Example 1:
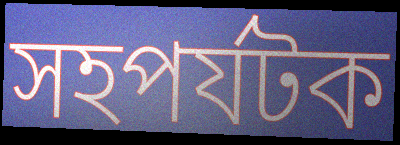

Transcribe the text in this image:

সহপর্যটক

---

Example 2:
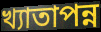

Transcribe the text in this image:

খ্যাতাপন্ন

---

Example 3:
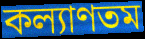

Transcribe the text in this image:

কল্যাণতম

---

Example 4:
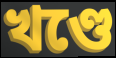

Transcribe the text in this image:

খণ্ডে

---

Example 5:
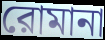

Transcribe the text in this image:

রোমানা